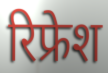
रिफ्रेश